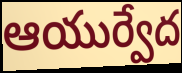
ఆయుర్వేద